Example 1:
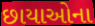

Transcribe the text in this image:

છાયાઓના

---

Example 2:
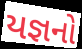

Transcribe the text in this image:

યજ્ઞનો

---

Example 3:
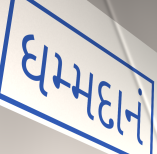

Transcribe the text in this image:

ધમ્મદાનં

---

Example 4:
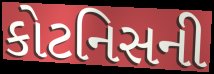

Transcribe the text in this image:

કોટનિસની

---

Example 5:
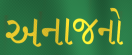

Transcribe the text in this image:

અનાજનો